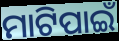
ମାଟିପାଇଁ